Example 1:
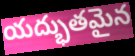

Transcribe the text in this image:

యద్భుతమైన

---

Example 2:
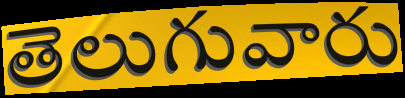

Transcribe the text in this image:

తెలుగువారు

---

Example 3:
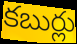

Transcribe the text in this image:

కబుర్లు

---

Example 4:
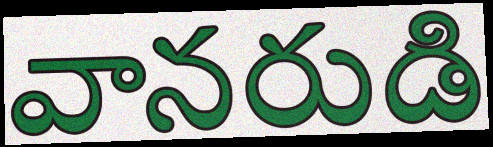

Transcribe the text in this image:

వానరుడి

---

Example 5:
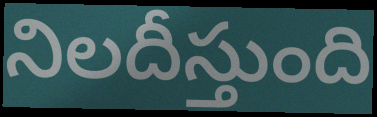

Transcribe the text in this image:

నిలదీస్తుంది